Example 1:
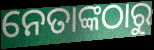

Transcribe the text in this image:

ନେତାଙ୍କଠାରୁ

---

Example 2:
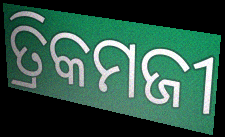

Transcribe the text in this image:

ତ୍ରିକମଜୀ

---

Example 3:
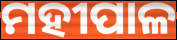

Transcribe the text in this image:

ମହୀପାଳ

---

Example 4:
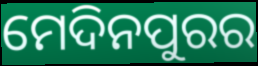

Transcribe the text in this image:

ମେଦିନପୁରର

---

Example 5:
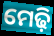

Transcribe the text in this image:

ମେଢ଼ି